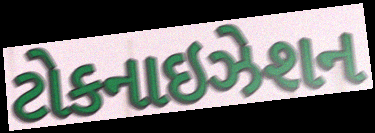
ટોકનાઇઝેશન